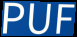
PUF